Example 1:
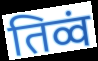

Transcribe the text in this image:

तिव्वं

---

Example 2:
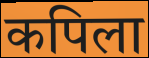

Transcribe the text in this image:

कपिला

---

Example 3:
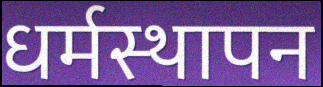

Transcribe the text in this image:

धर्मस्थापन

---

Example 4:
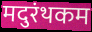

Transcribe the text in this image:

मदुरंथकम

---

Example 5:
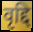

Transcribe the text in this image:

वृद्दि